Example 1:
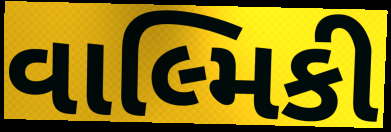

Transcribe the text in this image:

વાલ્મિકી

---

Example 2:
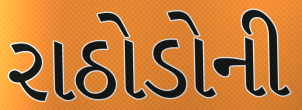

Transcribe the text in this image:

રાઠોડોની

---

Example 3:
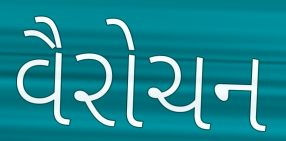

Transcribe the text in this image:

વૈરોચન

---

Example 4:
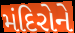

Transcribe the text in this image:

મંદિરોને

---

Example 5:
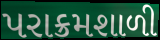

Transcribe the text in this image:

પરાક્રમશાળી